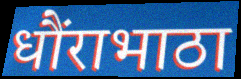
धौंराभाठा